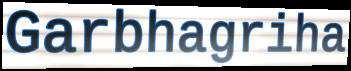
Garbhagriha